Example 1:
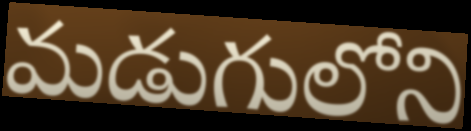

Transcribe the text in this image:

మడుగులోని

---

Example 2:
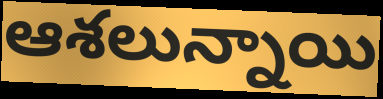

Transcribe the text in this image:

ఆశలున్నాయి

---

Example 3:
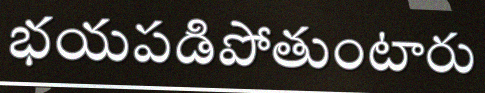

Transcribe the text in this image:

భయపడిపోతుంటారు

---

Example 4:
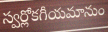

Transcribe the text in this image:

స్వర్లోకగీయమానుం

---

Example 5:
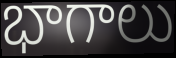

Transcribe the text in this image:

భాగాలు